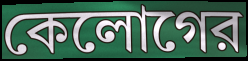
কেলোগের